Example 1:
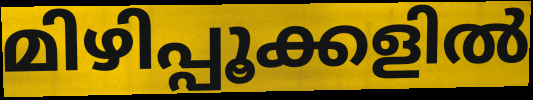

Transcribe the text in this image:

മിഴിപ്പൂക്കളിൽ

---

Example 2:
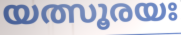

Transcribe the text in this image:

യത്സൂരയഃ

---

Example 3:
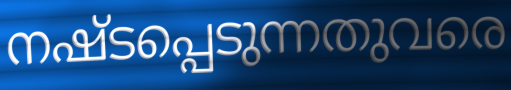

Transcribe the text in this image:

നഷ്ടപ്പെടുന്നതുവരെ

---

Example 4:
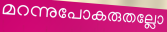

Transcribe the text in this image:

മറന്നുപോകരുതല്ലോ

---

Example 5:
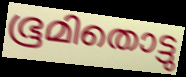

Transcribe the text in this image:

ഭൂമിതൊട്ടു